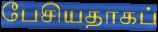
பேசியதாகப்